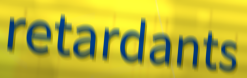
retardants